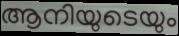
ആനിയുടെയും